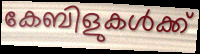
കേബിളുകൾക്ക്